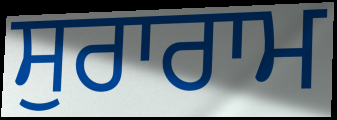
ਸੁਰਾਰਾਮ